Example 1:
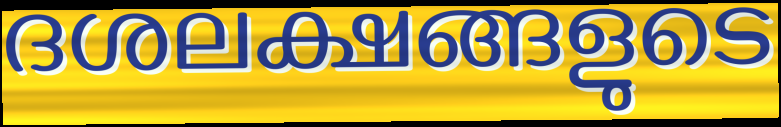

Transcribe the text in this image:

ദശലക്ഷങ്ങളുടെ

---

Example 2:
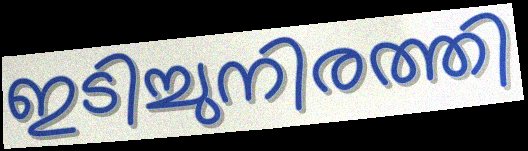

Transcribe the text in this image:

ഇടിച്ചുനിരത്തി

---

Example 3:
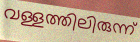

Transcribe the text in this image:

വള്ളത്തിലിരുന്ന്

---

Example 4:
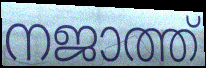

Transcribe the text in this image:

നജാത്ത്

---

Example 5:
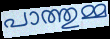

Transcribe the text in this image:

പാത്തുമ്മ